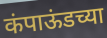
कंपाऊंडच्या